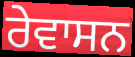
ਰੇਵਾਸਨ